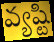
వ్యష్టి